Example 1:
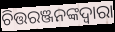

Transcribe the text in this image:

ଚିତ୍ତରଞ୍ଜନଙ୍କଦ୍ଵାରା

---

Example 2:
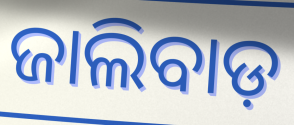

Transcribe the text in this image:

ଜାଲିବାଡ଼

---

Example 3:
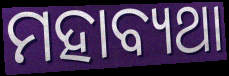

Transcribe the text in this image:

ମହାବ୍ୟଥା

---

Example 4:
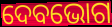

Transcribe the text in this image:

ଦେବଭୋଗ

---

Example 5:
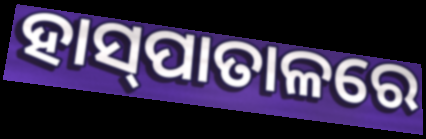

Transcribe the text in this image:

ହାସ୍‍ପାତାଳରେ